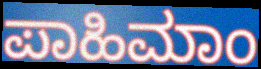
ಪಾಹಿಮಾಂ